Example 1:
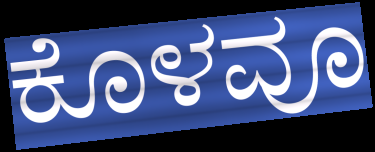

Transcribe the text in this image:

ಕೊಳವೂ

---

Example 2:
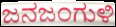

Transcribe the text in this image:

ಜನಜಂಗುಳಿ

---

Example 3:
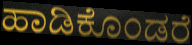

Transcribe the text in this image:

ಹಾಡಿಕೊಂಡರೆ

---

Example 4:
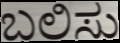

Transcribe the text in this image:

ಬಲಿಸು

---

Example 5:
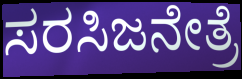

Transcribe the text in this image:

ಸರಸಿಜನೇತ್ರೆ